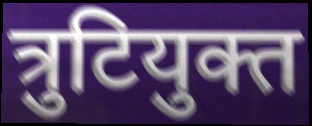
त्रुटियुक्त